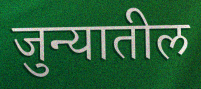
जुन्यातील